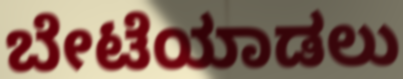
ಬೇಟೆಯಾಡಲು